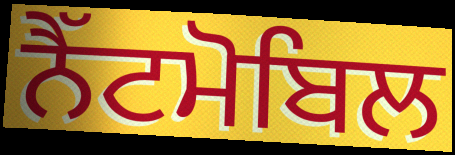
ਨੈੱਟਮੋਬਿਲ